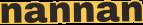
nannan